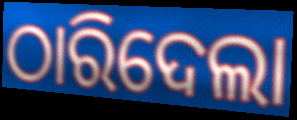
ଠାରିଦେଲା